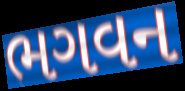
ભગવન